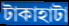
টাকাহাটা